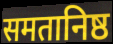
समतानिष्ठ